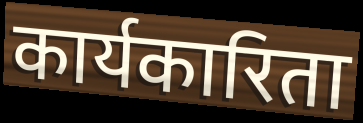
कार्यकारिता